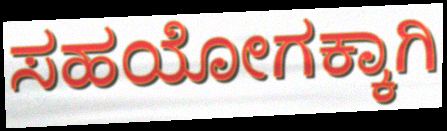
ಸಹಯೋಗಕ್ಕಾಗಿ